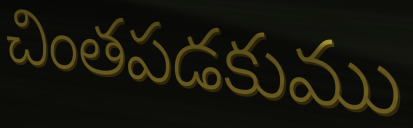
చింతపడకుము